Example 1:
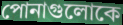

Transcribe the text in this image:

পোনাগুলোকে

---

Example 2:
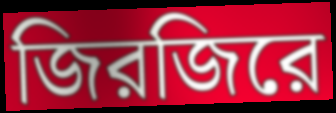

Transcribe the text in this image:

জিরজিরে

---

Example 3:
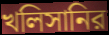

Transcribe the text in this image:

খলিসানির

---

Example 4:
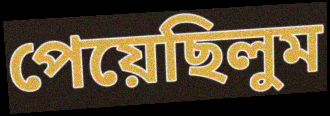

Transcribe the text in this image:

পেয়েছিলুম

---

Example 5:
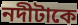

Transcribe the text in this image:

নদীটাকে